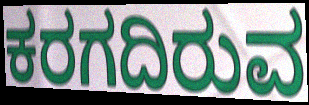
ಕರಗದಿರುವ